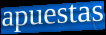
apuestas